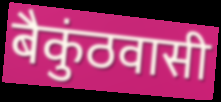
बैकुंठवासी